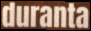
duranta